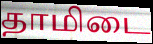
தாமிடை